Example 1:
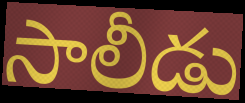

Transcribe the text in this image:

సాలీడు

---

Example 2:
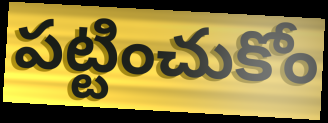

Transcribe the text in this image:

పట్టించుకోం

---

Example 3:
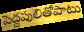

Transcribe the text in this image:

పెద్దపులితోపాటు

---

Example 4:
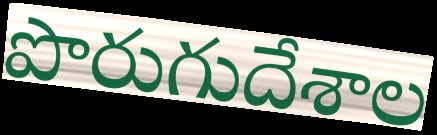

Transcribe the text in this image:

పొరుగుదేశాల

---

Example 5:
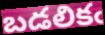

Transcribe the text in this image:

బడలికఁ